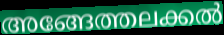
അങ്ങേത്തലക്കൽ